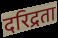
दरिद्रता